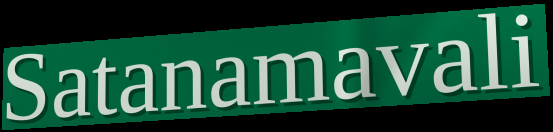
Satanamavali